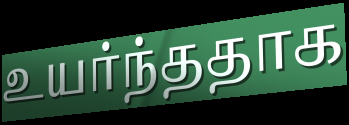
உயர்ந்ததாக